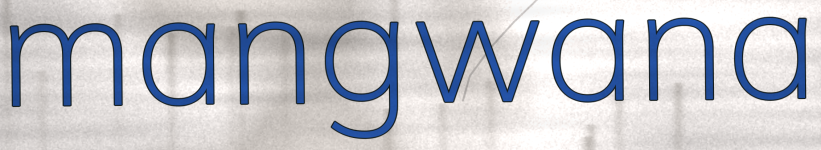
mangwana